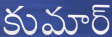
కుమార్